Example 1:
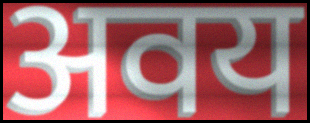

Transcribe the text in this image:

अवय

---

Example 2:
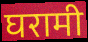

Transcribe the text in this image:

घरामी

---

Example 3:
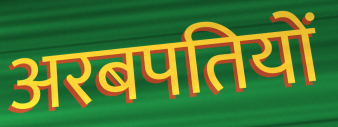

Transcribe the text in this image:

अरबपतियों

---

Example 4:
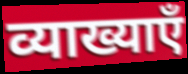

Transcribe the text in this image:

व्याख्याएँ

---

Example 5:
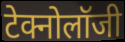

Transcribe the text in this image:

टेक्नोलॉजी